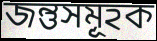
জন্তুসমূহক